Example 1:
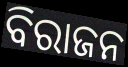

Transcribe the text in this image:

ବିରାଜନ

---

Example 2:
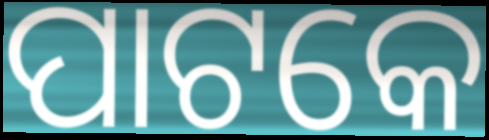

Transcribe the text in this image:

ପାଟକେ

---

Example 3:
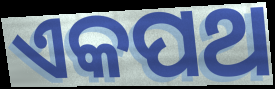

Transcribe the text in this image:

ଏକପଥ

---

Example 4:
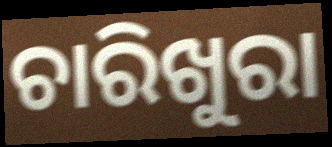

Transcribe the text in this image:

ଚାରିଖୁରା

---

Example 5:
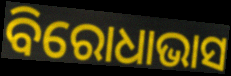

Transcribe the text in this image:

ବିରୋଧାଭାସ